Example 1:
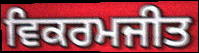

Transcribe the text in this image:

ਵਿਕਰਮਜੀਤ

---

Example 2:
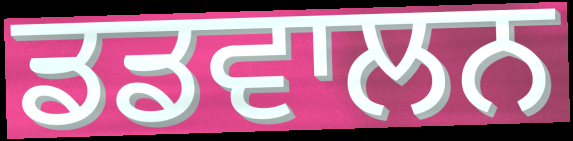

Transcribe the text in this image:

ਡਡਵਾਲਨ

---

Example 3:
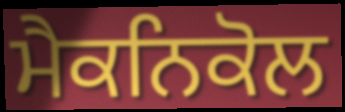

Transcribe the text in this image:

ਮੈਕਨਿਕੋਲ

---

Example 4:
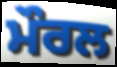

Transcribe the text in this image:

ਮੌਰਲ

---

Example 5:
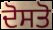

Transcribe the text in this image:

ਦੋਸਤੋ